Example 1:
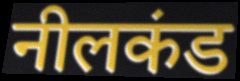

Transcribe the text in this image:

नीलकंड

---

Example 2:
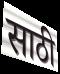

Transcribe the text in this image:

साठी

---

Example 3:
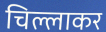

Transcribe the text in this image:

चिल्‍लाकर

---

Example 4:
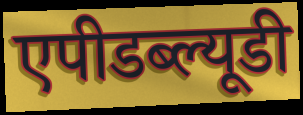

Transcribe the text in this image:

एपीडब्ल्यूडी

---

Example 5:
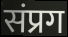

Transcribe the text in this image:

संप्रग